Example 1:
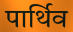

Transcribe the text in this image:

पार्थिव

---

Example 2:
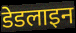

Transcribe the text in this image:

डेडलाइन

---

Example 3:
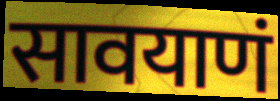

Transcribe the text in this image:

सावयाणं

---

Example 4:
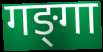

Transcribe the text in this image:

गङ्गा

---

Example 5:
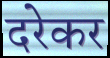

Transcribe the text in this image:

दरेकर